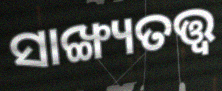
ସାଙ୍ଖ୍ୟତତ୍ତ୍ଵ